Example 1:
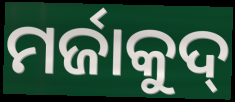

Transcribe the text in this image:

ମର୍ଜାକୁଦ୍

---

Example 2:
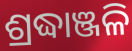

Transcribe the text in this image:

ଶ୍ରଦ୍ଧାଞ୍ଜଳି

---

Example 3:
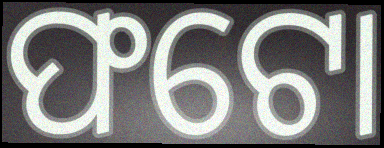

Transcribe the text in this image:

ଫଟୋ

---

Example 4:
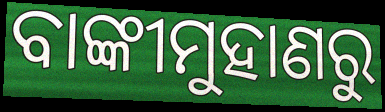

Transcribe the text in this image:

ବାଙ୍କୀମୁହାଣରୁ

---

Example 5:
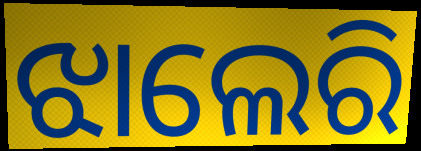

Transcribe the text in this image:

ଝାଲେରି